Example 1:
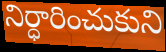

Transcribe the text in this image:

నిర్ధారించుకుని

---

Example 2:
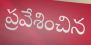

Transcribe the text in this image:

ప్రవేశించిన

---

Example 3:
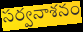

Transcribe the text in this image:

సర్వనాశనం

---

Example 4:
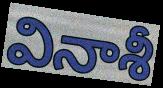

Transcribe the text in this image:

వినాశీ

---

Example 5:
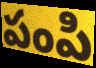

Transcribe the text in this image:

పంపి